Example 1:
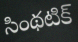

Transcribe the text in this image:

సింథటిక్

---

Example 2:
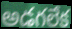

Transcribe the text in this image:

అడగలేక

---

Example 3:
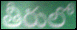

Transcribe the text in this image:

తీరులో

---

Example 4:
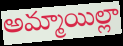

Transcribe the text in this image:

అమ్మాయిల్లా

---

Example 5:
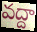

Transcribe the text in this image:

వద్దా